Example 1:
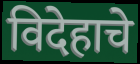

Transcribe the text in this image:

विदेहाचे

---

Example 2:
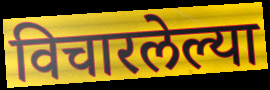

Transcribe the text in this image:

विचारलेल्या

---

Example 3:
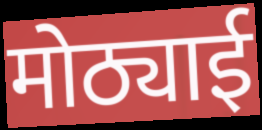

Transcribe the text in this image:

मोठ्याई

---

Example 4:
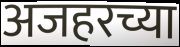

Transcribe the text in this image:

अजहरच्या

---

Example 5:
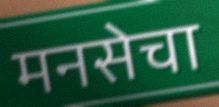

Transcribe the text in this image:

मनसेचा